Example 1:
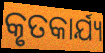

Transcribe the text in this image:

କୃତକାର୍ଯ୍ୟ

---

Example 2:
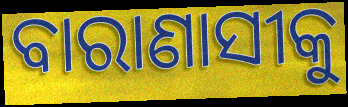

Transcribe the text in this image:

ବାରାଣାସୀକୁ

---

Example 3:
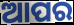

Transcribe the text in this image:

ଆପର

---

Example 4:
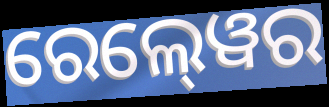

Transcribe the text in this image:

ରେଲ୍‍ୱେର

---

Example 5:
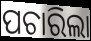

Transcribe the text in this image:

ପଚାରିଲା